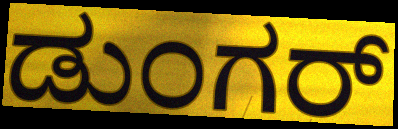
ಡುಂಗರ್